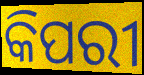
କିପରୀ